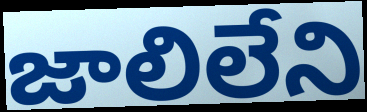
జాలిలేని